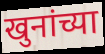
खुनांच्या